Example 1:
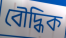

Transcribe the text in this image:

বৌদ্ধিক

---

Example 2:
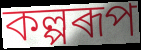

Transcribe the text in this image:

কল্পৰূপ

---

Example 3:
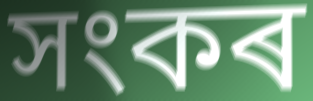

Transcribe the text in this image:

সংকৰ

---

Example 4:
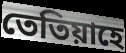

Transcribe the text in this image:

তেতিয়াহে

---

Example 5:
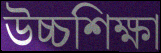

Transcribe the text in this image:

উচ্চশিক্ষা